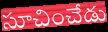
సూచించేడు